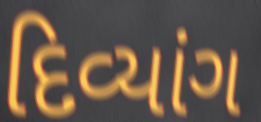
દિવ્યાંગ